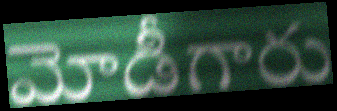
మోడీగారు